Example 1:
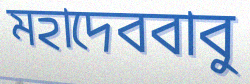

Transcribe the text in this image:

মহাদেববাবু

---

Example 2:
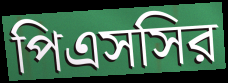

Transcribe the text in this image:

পিএসসির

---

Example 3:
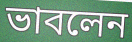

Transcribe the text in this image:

ভাবলেন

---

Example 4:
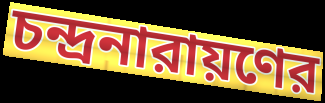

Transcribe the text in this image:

চন্দ্রনারায়ণের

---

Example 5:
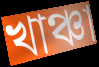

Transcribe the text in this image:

খাঞ্চা